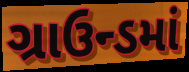
ગ્રાઉન્ડમાં